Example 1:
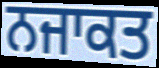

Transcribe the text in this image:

ਨਜਾਕਤ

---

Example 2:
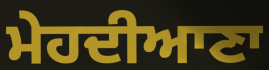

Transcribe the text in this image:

ਮੇਹਦੀਆਣਾ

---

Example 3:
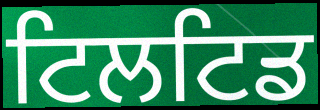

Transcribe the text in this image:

ਟਿਲਟਿਡ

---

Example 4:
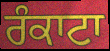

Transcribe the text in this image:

ਰੰਕਾਟਾ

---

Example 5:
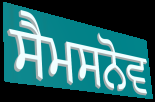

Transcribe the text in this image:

ਸੈਮਸਨੋਵ